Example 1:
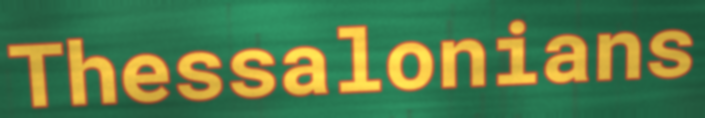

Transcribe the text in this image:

Thessalonians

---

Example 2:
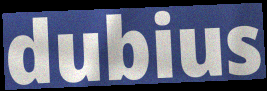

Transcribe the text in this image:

dubius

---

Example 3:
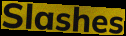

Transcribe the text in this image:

Slashes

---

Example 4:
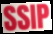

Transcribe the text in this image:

SSIP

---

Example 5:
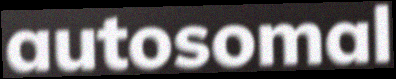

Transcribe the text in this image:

autosomal